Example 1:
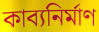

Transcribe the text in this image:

কাব্যনির্মাণ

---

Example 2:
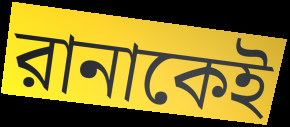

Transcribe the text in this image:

রানাকেই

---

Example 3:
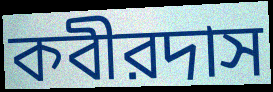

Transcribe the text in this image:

কবীরদাস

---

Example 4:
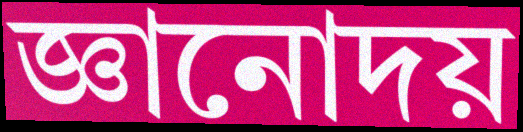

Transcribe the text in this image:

জ্ঞানোদয়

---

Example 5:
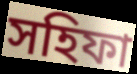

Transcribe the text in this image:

সহিফা